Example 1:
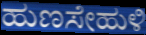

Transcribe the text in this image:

ಹುಣಸೇಹುಳಿ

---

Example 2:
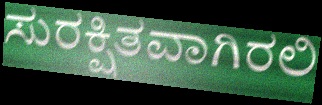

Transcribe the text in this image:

ಸುರಕ್ಷಿತವಾಗಿರಲಿ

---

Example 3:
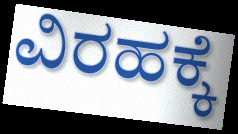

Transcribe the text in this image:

ವಿರಹಕ್ಕೆ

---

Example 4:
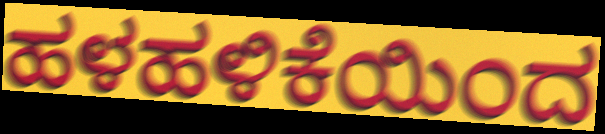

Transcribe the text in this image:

ಹಳಹಳಿಕೆಯಿಂದ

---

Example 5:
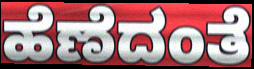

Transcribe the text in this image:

ಹೆಣೆದಂತೆ